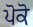
ਪੋਕੋ